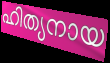
ഹിത്യനായ